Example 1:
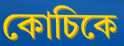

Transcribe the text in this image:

কোচিকে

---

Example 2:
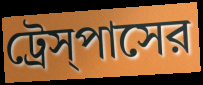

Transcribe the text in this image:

ট্রেস্‌পাসের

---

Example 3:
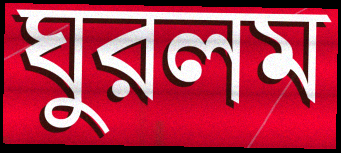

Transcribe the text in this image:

ঘুরলম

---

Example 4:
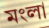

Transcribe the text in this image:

মংলা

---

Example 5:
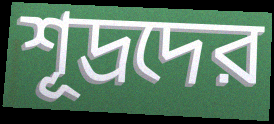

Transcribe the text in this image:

শূদ্রদের